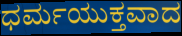
ಧರ್ಮಯುಕ್ತವಾದ